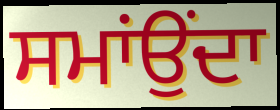
ਸਮਾਂਉਂਦਾ